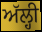
ਅੱਲ੍ਹੀ